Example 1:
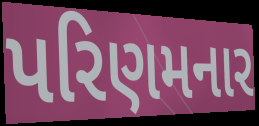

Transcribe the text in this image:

પરિણમનાર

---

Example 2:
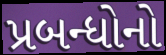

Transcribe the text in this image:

પ્રબન્ધોનો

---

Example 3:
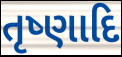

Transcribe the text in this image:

તૃષ્ણાદિ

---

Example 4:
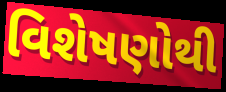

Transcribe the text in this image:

વિશેષણોથી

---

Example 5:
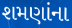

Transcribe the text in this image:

શમણાંના